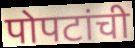
पोपटांची